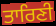
ਤਾਰਿਣੀ